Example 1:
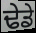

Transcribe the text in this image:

ਢੇਡੇ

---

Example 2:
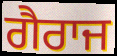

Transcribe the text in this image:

ਗੈਰਾਜ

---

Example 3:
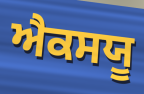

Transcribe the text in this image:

ਐਕਸਯੂ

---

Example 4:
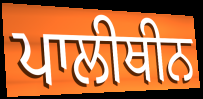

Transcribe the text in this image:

ਪਾਲੀਥੀਨ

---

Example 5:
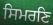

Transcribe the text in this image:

ਸਿਮਰਣਿ